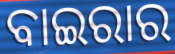
ବାଇରାର